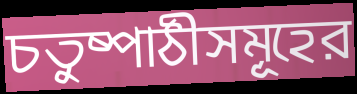
চতুষ্পাঠীসমূহের